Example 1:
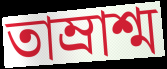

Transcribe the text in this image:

তাম্রাশ্ম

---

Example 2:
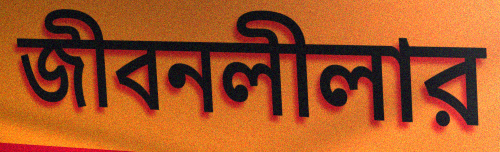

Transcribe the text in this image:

জীবনলীলার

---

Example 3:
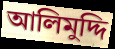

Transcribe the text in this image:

আলিমুদ্দি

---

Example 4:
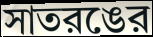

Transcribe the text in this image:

সাতরঙের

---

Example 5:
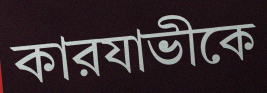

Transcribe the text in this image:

কারযাভীকে